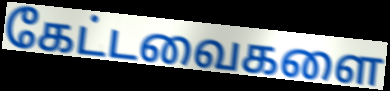
கேட்டவைகளை